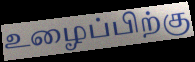
உழைப்பிற்கு